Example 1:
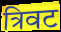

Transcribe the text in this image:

त्रिवट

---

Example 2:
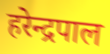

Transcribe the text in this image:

हरेन्द्रपाल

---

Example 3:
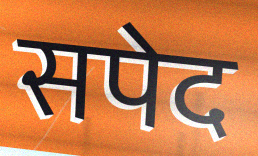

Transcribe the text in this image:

सपेद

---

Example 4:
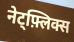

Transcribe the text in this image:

नेट्फ़्लिक्स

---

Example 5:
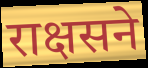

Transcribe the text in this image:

राक्षसने